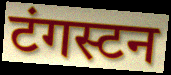
टंगस्टन